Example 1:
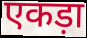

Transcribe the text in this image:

एकड़ा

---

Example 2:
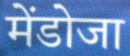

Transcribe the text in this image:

मेंडोजा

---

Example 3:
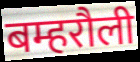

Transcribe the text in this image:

बम्हरौली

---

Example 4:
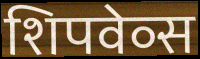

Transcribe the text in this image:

शिपवेव्स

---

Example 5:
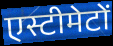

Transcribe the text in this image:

एस्टीमेटों